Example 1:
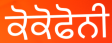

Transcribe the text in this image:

ਕੋਕੋਫੋਨੀ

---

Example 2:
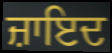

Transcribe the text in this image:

ਜ਼ਾਇਦ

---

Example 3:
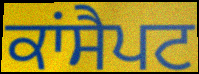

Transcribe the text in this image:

ਕਾਂਸੈਪਟ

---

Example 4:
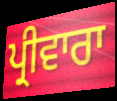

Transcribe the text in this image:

ਪ੍ਰੀਵਾਰਾ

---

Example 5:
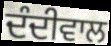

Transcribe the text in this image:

ਦੰਦੀਵਾਲ